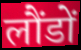
लौंडों